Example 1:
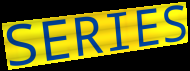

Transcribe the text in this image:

SERIES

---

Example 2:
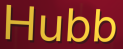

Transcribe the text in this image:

Hubb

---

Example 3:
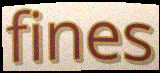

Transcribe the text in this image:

fines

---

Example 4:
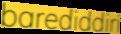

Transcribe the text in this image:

barediddiri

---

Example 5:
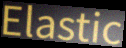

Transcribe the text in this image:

Elastic